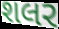
શલર